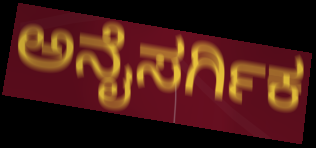
ಅನೈಸರ್ಗಿಕ